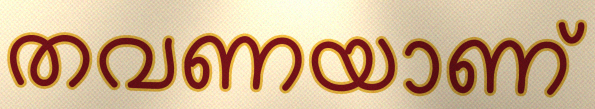
തവണയാണ്